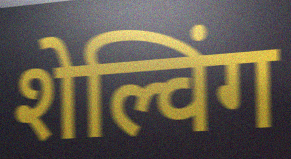
शेल्विंग